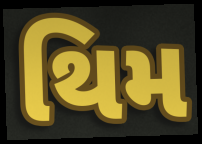
થિમ